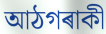
আঠগৰাকী